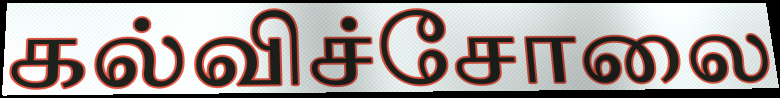
கல்விச்சோலை